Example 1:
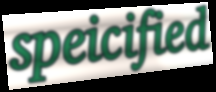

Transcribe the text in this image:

speicified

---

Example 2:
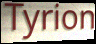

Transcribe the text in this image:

Tyrion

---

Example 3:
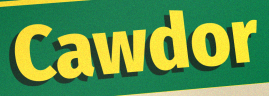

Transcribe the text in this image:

Cawdor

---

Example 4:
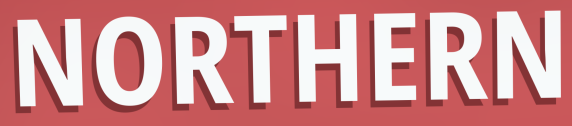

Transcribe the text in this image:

NORTHERN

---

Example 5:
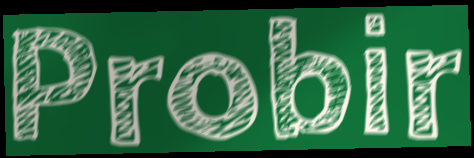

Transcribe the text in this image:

Probir